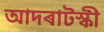
আদৰাটস্কী